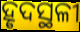
ହୃଦସ୍ଥଳୀ